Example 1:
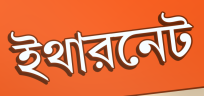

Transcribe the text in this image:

ইথারনেট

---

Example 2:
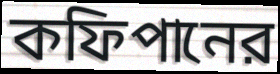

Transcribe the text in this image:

কফিপানের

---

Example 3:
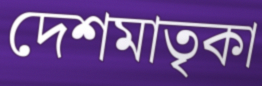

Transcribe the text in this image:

দেশমাতৃকা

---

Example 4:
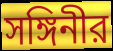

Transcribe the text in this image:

সঙ্গিনীর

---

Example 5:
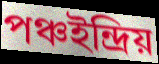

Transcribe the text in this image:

পঞ্চইন্দ্রিয়